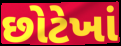
છોટેખાં